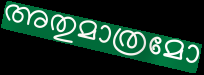
അതുമാത്രമോ